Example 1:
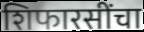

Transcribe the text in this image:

शिफारसींचा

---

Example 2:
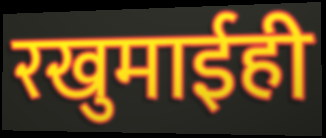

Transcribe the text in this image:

रखुमाईही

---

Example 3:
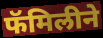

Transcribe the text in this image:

फॅमिलीने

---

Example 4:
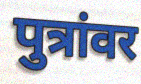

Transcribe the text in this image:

पुत्रांवर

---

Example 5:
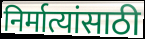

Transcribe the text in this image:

निर्मात्यांसाठी